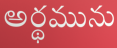
అర్థమును